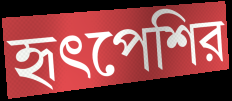
হৃৎপেশির